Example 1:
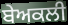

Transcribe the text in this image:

ਬੇਅਕਲੀ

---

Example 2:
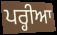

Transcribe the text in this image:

ਪਰ੍ਹੀਆ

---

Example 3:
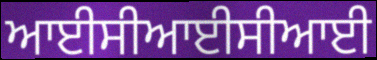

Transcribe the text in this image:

ਆਈਸੀਆਈਸੀਆਈ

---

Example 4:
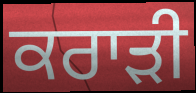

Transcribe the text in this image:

ਕਰਾੜੀ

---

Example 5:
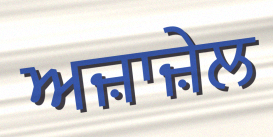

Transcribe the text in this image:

ਅਜ਼ਾਜ਼ੇਲ